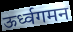
ऊर्ध्वगमन